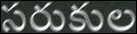
సరుకుల